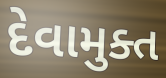
દેવામુક્ત